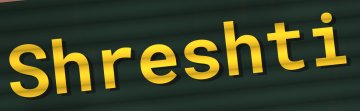
Shreshti